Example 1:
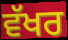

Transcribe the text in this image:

ਵੱਖਰ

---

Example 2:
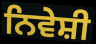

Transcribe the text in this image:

ਨਿਵੇਸ਼ੀ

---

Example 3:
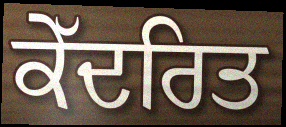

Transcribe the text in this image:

ਕੇੱਦਰਿਤ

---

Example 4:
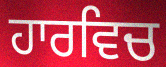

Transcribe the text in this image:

ਹਾਰਵਿਚ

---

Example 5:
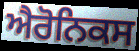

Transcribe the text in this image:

ਐਰੋਨਿਕਸ